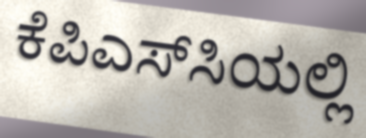
ಕೆಪಿಎಸ್‌ಸಿಯಲ್ಲಿ